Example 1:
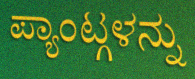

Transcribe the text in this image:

ಪ್ಯಾಂಟ್ಗಳನ್ನು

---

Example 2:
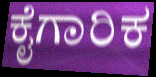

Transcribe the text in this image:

ಕೈಗಾರಿಕ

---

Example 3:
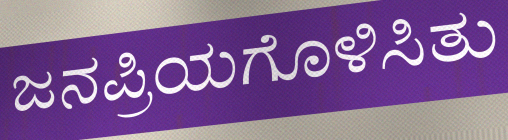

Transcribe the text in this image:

ಜನಪ್ರಿಯಗೊಳಿಸಿತು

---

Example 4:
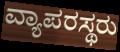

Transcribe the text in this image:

ವ್ಯಾಪರಸ್ಥರು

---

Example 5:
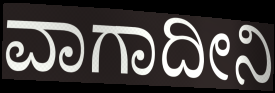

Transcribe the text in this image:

ವಾಗಾದೀನಿ